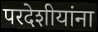
परदेशीयांना